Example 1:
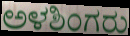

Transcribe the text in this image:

ಅಳಶಿಂಗರು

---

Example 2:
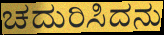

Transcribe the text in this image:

ಚದುರಿಸಿದನು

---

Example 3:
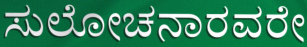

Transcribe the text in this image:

ಸುಲೋಚನಾರವರೇ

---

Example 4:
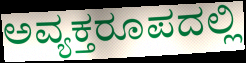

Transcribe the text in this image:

ಅವ್ಯಕ್ತರೂಪದಲ್ಲಿ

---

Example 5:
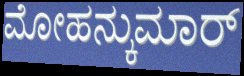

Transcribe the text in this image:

ಮೋಹನ್ಕುಮಾರ್